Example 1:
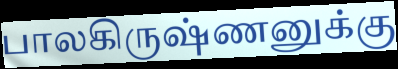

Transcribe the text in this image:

பாலகிருஷ்ணனுக்கு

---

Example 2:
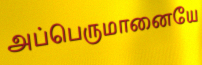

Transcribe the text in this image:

அப்பெருமானையே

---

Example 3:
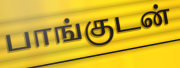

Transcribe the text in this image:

பாங்குடன்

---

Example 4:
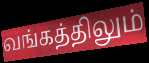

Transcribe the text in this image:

வங்கத்திலும்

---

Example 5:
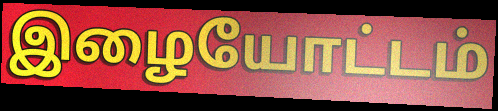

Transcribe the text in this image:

இழையோட்டம்